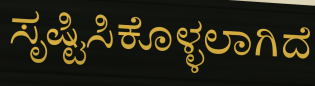
ಸೃಷ್ಟಿಸಿಕೊಳ್ಳಲಾಗಿದೆ